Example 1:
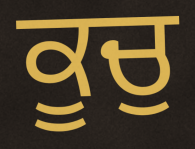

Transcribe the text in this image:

ਕੂਚੁ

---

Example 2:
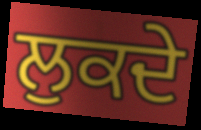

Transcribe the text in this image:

ਲੁਕਦੇ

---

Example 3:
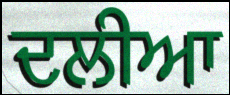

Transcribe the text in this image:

ਦਲੀਆ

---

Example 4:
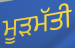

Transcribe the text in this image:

ਮੂੜਮੱਤੀ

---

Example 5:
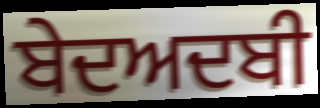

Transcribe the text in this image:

ਬੇਦਅਦਬੀ